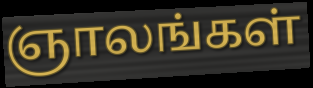
ஞாலங்கள்